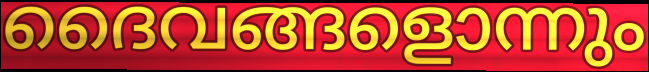
ദൈവങ്ങളൊന്നും